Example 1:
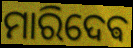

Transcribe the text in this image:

ମାରିଦେଵ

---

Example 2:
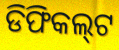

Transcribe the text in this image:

ଡିଫିକଲ୍‌ଟ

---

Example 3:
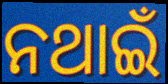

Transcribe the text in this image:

ନଥାଇଁ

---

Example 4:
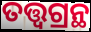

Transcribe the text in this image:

ତତ୍ତ୍ୱଗ୍ରନ୍ଥ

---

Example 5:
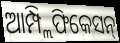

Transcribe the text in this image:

ଆମ୍ପ୍ଲିଫିକେସନ୍